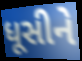
ધૂસીને